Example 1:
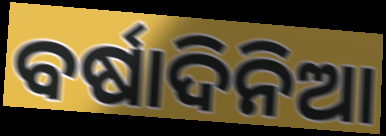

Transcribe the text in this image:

ବର୍ଷାଦିନିଆ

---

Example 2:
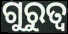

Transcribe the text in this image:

ଗୁରୁତ୍ୱ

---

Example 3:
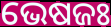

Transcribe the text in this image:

ଭେଷଜଃ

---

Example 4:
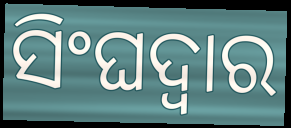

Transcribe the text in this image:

ସିଂଘଦ୍ୱାର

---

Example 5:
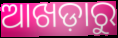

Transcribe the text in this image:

ଆଖଡ଼ାରୁ